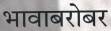
भावाबरोबर